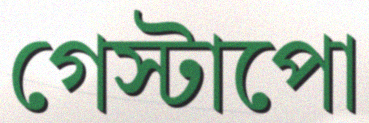
গেস্টাপো